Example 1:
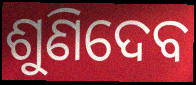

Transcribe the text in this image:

ଶୁଣିଦେବ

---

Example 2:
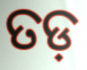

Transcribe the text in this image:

ତଡ଼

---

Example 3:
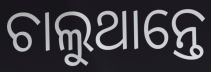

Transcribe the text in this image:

ଚାଲୁଥାନ୍ତେ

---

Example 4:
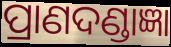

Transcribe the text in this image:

ପ୍ରାଣଦଣ୍ଡାଜ୍ଞା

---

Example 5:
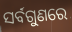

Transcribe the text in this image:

ସର୍ବଗୁଣରେ